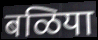
बळिया